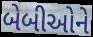
બેબીઓને